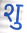
शु